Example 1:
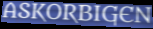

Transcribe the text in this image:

ASKORBIGEN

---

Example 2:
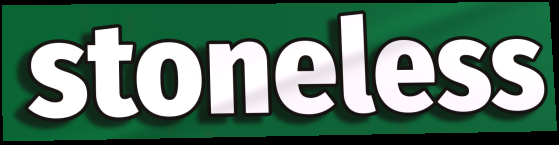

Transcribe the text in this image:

stoneless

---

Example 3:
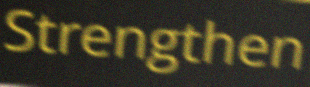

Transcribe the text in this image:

Strengthen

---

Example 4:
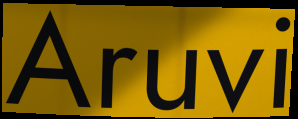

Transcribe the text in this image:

Aruvi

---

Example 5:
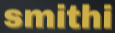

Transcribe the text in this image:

smithi